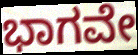
ಭಾಗವೇ